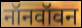
नॉनवॉवन